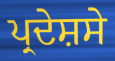
ਪ੍ਰਦੇਸ਼ਸੇ